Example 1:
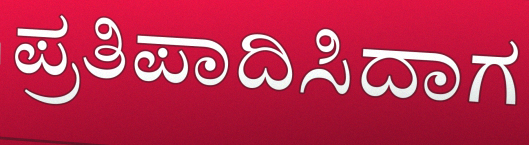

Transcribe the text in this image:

ಪ್ರತಿಪಾದಿಸಿದಾಗ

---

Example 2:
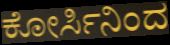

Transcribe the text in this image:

ಕೋರ್ಸಿನಿಂದ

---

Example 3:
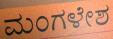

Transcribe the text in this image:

ಮಂಗಳೇಶ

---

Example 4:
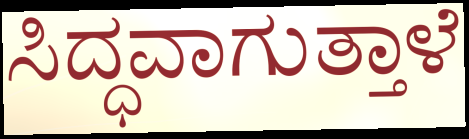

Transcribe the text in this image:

ಸಿದ್ಧವಾಗುತ್ತಾಳೆ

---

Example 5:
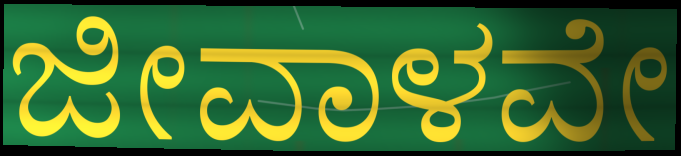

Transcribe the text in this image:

ಜೀವಾಳವೇ